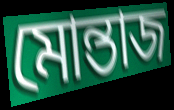
মোন্তাজ